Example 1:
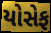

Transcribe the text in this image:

યોસેફ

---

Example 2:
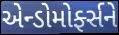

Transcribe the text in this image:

એન્ડોમોર્ફ્સને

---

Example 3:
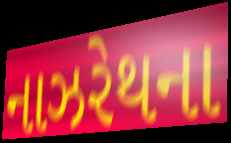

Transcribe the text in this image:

નાઝરેથના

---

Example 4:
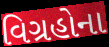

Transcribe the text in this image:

વિગ્રહોના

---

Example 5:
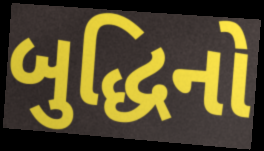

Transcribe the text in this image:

બુદ્ધિનો